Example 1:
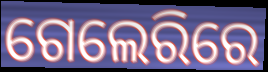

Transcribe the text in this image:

ଗେଲେରିରେ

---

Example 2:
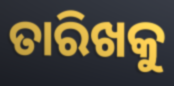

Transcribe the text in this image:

ତାରିଖକୁ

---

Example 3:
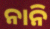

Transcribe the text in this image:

ନାନି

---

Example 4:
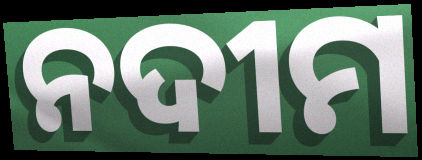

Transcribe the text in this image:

ନଦୀମ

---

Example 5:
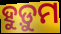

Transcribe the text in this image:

ହୁଡ଼ୁମ